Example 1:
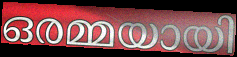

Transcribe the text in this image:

ഒരമ്മയായി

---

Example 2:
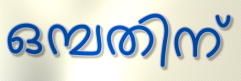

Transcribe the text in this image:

ഒമ്പതിന്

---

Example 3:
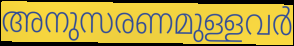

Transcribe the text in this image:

അനുസരണമുള്ളവർ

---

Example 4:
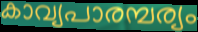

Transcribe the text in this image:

കാവ്യപാരമ്പര്യം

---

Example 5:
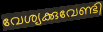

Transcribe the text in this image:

വേശ്യക്കുവേണ്ടി